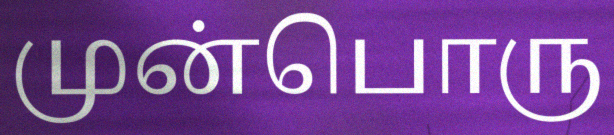
முன்பொரு